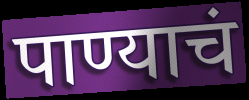
पाण्याचं